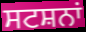
ਸਟਸ਼ਨਾਂ